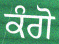
ਕੰਗੋ